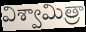
విశ్వామిత్రా